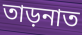
তাড়নাত